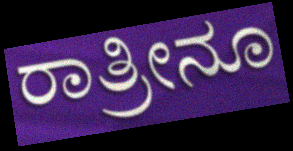
ರಾತ್ರೀನೂ